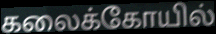
கலைக்கோயில்